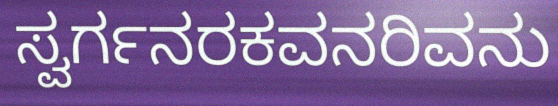
ಸ್ವರ್ಗನರಕವನರಿವನು